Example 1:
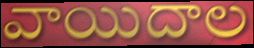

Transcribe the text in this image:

వాయిదాల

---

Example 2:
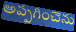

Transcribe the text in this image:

అప్పగించెను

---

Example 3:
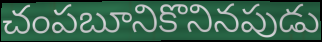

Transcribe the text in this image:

చంపబూనికొనినపుడు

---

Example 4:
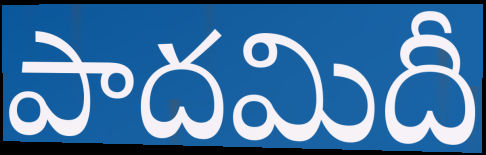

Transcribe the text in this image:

పాదమిదీ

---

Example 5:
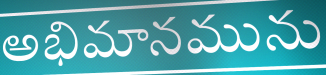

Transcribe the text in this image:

అభిమానమును